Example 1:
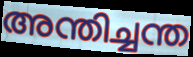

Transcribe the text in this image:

അന്തിച്ചന്ത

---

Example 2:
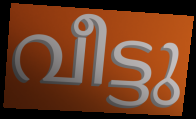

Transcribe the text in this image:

വീട്ടു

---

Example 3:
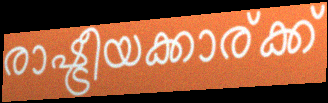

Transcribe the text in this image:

രാഷ്ട്രീയക്കാര്ക്ക്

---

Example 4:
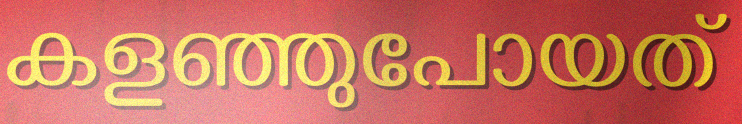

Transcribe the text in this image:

കളഞ്ഞുപോയത്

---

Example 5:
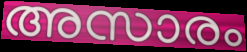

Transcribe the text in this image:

അസാരം